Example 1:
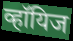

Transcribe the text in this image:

व्हॉयिज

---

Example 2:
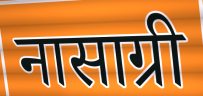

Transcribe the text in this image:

नासाग्री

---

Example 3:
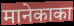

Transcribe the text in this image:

मानेकाका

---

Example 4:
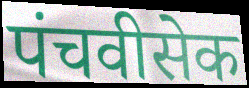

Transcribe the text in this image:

पंचवीसेक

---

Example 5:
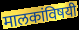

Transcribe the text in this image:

मालकांविषयी